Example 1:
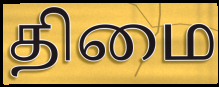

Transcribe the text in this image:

திமை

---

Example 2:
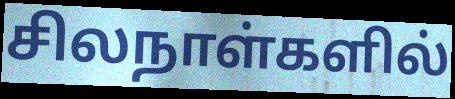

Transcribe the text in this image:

சிலநாள்களில்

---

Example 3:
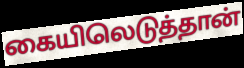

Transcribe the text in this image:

கையிலெடுத்தான்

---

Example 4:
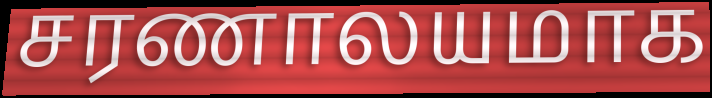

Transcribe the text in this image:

சரணாலயமாக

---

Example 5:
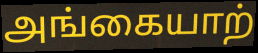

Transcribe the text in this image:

அங்கையாற்